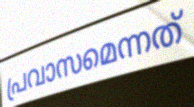
പ്രവാസമെന്നത്